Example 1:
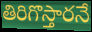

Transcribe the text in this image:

తిరిగొస్తారనే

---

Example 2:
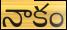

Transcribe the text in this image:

నాకం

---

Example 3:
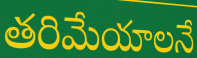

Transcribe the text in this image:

తరిమేయాలనే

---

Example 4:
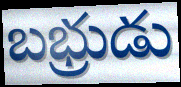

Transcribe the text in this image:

బభ్రుడు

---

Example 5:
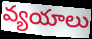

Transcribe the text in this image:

వ్యయాలు